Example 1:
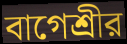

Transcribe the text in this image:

বাগেশ্রীর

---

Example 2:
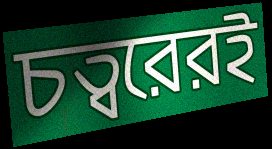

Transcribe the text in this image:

চত্বরেরই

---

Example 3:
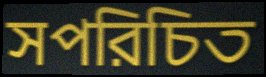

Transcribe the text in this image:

সপরিচিত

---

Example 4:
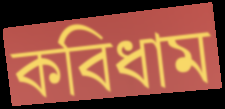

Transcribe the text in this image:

কবিধাম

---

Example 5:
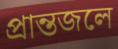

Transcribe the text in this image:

প্রান্তজলে